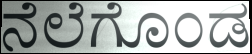
ನೆಲೆಗೊಂಡ